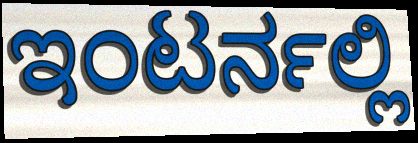
ಇಂಟರ್ನಲ್ಲಿ